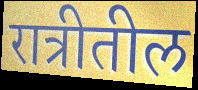
रात्रीतील